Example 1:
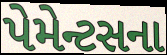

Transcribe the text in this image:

પેમેન્ટસના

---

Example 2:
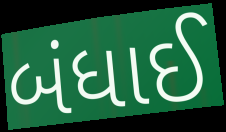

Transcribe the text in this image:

બંધાઈ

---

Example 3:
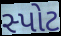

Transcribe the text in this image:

સ્પોટ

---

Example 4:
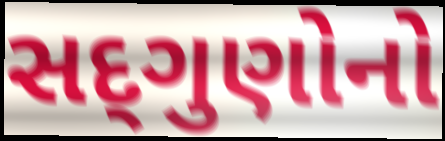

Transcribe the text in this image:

સદ્‌ગુણોનો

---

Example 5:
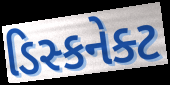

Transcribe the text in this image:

ડિસ્કનેક્ટ